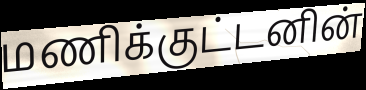
மணிக்குட்டனின்